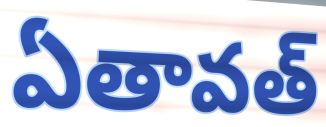
ఏతావత్